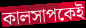
কালসাপকেই